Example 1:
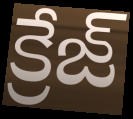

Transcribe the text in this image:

క్రేజ్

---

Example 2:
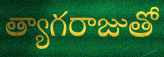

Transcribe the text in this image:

త్యాగరాజుతో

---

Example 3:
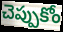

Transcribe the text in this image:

చెప్పుకోం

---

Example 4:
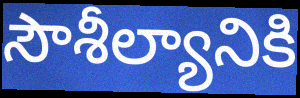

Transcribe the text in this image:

సౌశీల్యానికి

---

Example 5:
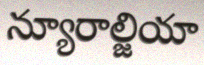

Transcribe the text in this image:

న్యూరాల్జియా